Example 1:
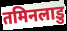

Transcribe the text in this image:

तमिनलाडु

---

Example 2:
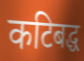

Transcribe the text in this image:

कटिबद्ध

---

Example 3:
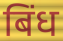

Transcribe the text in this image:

बिंध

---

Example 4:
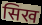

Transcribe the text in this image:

सिख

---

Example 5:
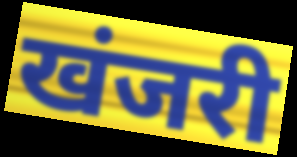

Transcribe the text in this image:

खंजरी